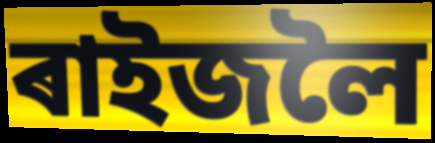
ৰাইজলৈ